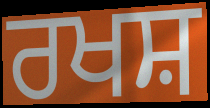
ਰਖਸ਼